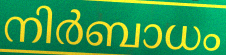
നിർബാധം